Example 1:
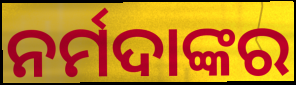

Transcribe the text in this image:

ନର୍ମଦାଙ୍କର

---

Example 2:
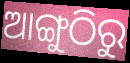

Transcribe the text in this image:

ଆଙ୍ଗୁଠିରୁ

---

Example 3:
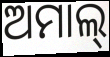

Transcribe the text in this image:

ଅମାଲ୍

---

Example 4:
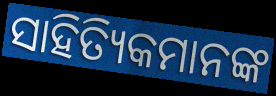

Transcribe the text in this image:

ସାହିତ୍ୟିକମାନଙ୍କ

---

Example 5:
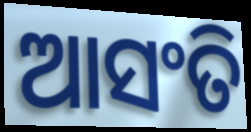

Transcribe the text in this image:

ଆସଂତି